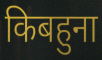
किबहुना